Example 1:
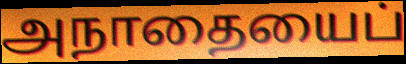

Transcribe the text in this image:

அநாதையைப்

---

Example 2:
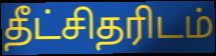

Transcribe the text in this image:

தீட்சிதரிடம்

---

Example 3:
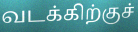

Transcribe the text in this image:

வடக்கிற்குச்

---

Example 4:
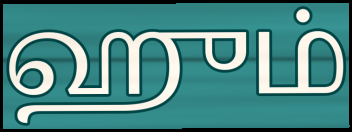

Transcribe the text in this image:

ஹும்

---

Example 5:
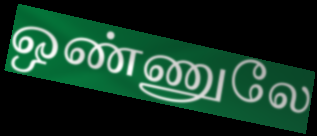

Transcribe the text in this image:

ஒண்ணுலே